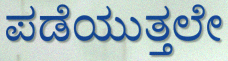
ಪಡೆಯುತ್ತಲೇ